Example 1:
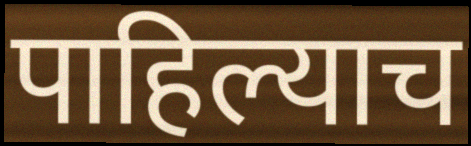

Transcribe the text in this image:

पाहिल्याच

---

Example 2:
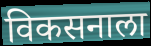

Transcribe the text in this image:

विकसनाला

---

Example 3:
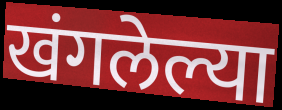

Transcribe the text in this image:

खंगलेल्या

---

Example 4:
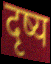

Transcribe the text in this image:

दृष्य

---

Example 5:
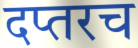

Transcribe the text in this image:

दप्तरच